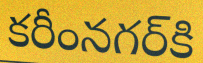
కరీంనగర్‌కి